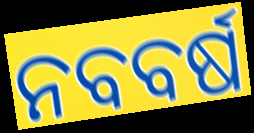
ନବବର୍ଷ